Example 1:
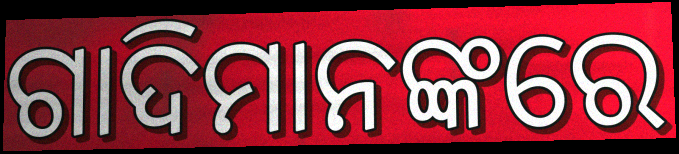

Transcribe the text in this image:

ଗାଦିମାନଙ୍କରେ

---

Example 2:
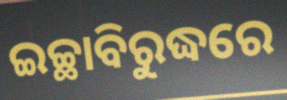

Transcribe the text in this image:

ଇଚ୍ଛାବିରୁଦ୍ଧରେ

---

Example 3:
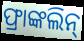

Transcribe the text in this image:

ଫ୍ରାଙ୍କଲିନ୍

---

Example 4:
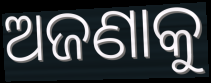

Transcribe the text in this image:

ଅଜଣାକୁ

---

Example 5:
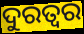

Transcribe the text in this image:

ଦୁରତ୍ଵର